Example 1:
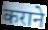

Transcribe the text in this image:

कराने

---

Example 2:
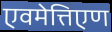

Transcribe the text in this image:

एवमेत्तिएण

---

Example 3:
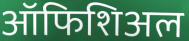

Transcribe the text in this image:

ऑफिशिअल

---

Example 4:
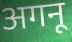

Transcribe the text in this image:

अगनू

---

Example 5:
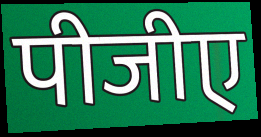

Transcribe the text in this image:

पीजीए